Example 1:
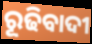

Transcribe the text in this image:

ରୂଢିବାଦୀ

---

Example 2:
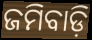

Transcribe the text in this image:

ଜମିବାଡ଼ି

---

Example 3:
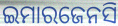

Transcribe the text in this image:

ଇମାରଜେନସି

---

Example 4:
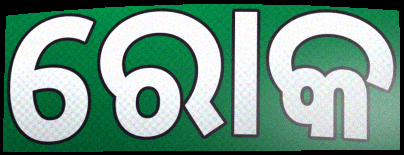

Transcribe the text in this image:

ରୋକ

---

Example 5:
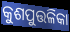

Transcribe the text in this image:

କୁଶପୁତ୍ତଳିକା